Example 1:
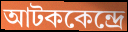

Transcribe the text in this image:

আটককেন্দ্রে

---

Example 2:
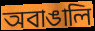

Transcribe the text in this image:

অবাঙালি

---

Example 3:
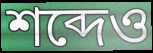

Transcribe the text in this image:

শব্দেও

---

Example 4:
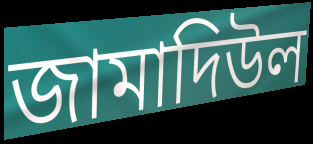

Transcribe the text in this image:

জামাদিউল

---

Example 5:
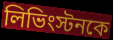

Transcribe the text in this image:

লিভিংস্টনকে